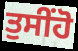
ਤੁਸੀਂਹੋ